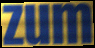
zum